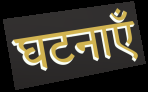
घटनाएँ